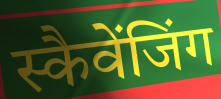
स्कैवेंजिंग